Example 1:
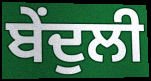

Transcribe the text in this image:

ਬੇਂਦੁਲੀ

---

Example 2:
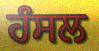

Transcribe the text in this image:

ਹੰਸਲ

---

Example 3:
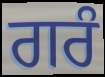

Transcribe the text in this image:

ਗਰੰ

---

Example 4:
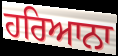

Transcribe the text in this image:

ਹਰਿਆਨਾ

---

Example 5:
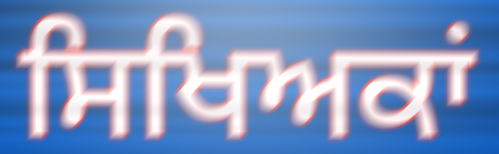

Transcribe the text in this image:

ਸਿਖਿਅਕਾਂ